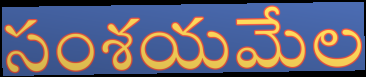
సంశయమేల